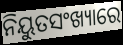
ନିୟୁତସଂଖ୍ୟାରେ